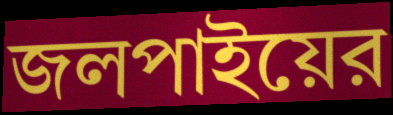
জলপাইয়ের